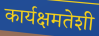
कार्यक्षमतेशी